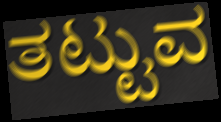
ತಟ್ಟುವ